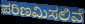
ಪರಿಣಮಿಸಲಿವೆ